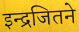
इन्द्रजितने